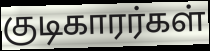
குடிகாரர்கள்